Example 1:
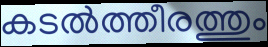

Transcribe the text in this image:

കടൽത്തീരത്തും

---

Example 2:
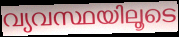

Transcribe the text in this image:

വ്യവസ്ഥയിലൂടെ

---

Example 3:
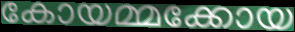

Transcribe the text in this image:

കോയമ്മക്കോയ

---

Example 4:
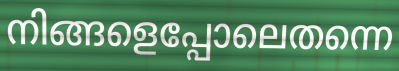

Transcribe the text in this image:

നിങ്ങളെപ്പോലെതന്നെ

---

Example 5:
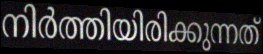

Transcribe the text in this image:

നിർത്തിയിരിക്കുന്നത്